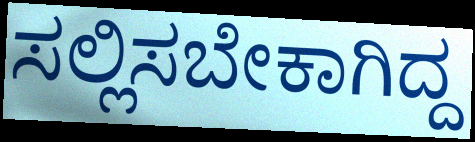
ಸಲ್ಲಿಸಬೇಕಾಗಿದ್ದ